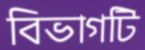
বিভাগটি